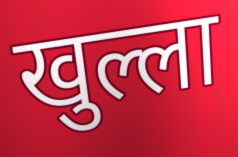
खुल्ला